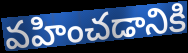
వహించడానికి